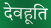
देवहूति